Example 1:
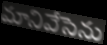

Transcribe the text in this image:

మానివేసెను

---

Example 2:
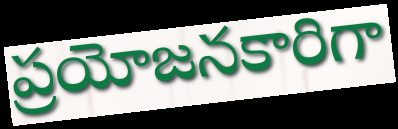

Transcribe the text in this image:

ప్రయోజనకారిగా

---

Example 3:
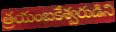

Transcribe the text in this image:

త్రయంబకేశ్వరుడిని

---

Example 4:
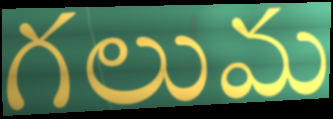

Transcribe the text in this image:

గలుమ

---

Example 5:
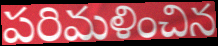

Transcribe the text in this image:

పరిమళించిన